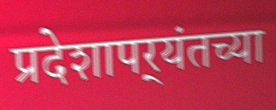
प्रदेशापर्यंतच्या